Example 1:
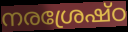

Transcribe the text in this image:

നരശ്രേഷ്ഠ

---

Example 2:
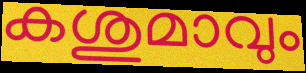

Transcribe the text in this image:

കശുമാവും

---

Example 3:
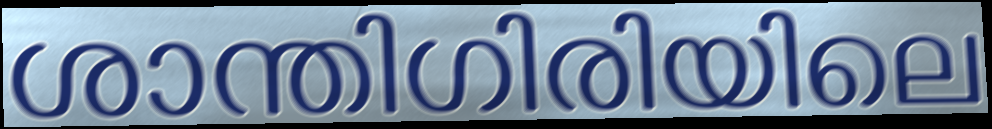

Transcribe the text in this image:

ശാന്തിഗിരിയിലെ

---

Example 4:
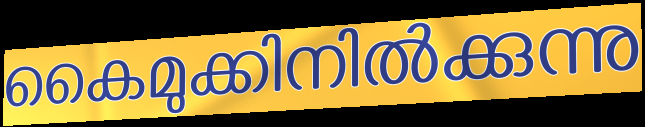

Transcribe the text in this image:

കൈമുക്കിനിൽക്കുന്നു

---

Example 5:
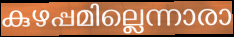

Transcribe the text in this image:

കുഴപ്പമില്ലെന്നാരാ